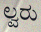
ಲ್ವರು